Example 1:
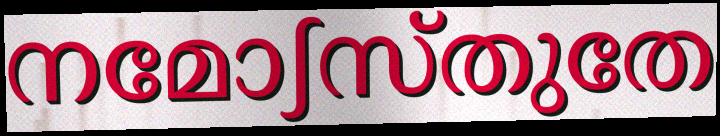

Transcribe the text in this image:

നമോഽസ്തുതേ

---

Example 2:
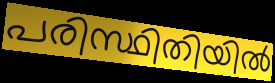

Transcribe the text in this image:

പരിസ്ഥിതിയിൽ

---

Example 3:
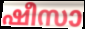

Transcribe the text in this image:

ഷീസാ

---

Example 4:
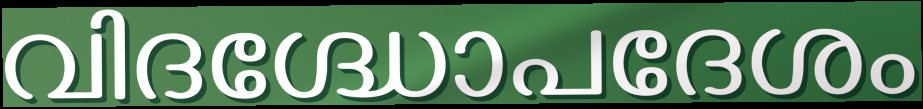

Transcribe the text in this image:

വിദഗ്ദ്ധോപദേശം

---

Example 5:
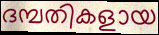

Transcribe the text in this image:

ദമ്പതികളായ